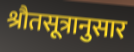
श्रौतसूत्रानुसार